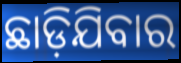
ଛାଡ଼ିଯିବାର